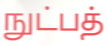
நுட்பத்